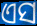
ଏସ